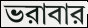
ভরাবার